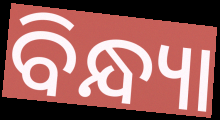
ବିନ୍ଧ୍ୟା